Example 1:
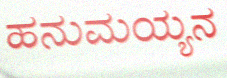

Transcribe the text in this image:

ಹನುಮಯ್ಯನ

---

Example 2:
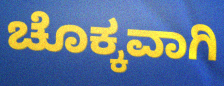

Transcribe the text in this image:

ಚೊಕ್ಕವಾಗಿ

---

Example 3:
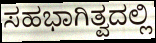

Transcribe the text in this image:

ಸಹಭಾಗಿತ್ವದಲ್ಲಿ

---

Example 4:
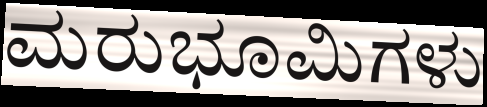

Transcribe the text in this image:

ಮರುಭೂಮಿಗಳು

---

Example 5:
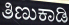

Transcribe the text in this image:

ತಿಣುಕಾಡಿ